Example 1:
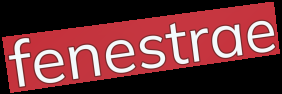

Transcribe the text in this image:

fenestrae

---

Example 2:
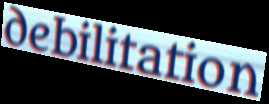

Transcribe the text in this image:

debilitation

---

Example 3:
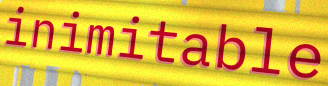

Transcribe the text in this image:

inimitable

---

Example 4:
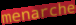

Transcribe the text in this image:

menarche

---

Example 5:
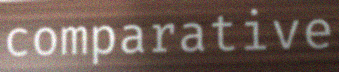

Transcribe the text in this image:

comparative